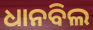
ଧାନବିଲ